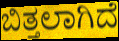
ಬಿತ್ತಲಾಗಿದೆ